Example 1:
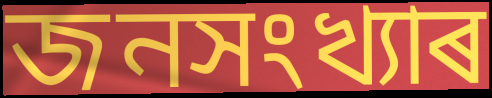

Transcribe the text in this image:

জনসংখ্যাৰ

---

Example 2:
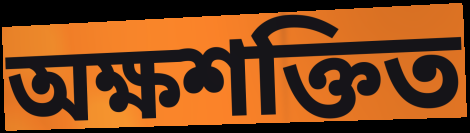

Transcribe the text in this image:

অক্ষশক্তিত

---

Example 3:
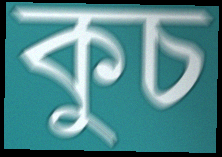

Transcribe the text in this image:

কুচ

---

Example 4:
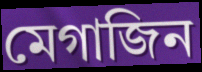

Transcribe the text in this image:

মেগাজিন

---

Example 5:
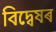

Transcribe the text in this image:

বিদ্বেষৰ